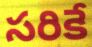
సరికే